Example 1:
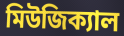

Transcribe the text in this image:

মিউজিক্যাল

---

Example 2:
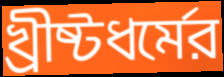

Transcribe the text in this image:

খ্রীষ্টধর্মের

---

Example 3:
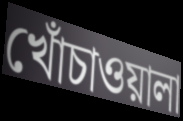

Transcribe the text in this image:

খোঁচাওয়ালা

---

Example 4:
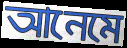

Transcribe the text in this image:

আনেমে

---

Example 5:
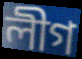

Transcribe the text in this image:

লীগ